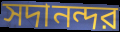
সদানন্দর